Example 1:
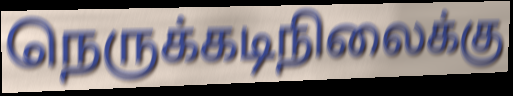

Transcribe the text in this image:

நெருக்கடிநிலைக்கு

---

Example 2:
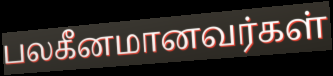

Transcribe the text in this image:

பலகீனமானவர்கள்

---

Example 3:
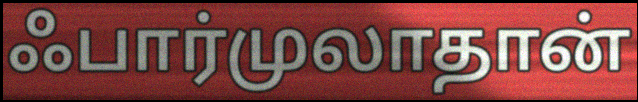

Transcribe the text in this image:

ஃபார்முலாதான்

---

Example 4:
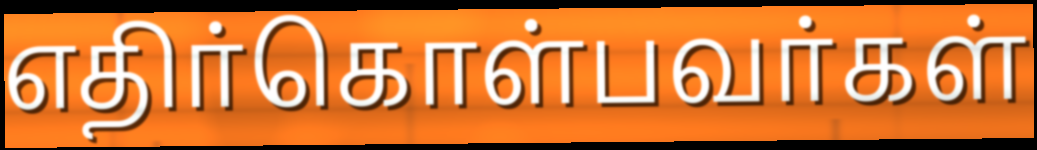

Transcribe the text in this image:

எதிர்கொள்பவர்கள்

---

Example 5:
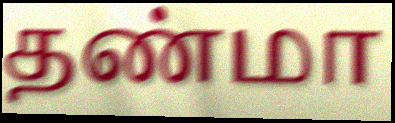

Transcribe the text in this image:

தண்மா